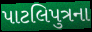
પાટલિપુત્રના